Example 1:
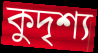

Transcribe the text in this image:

কুদৃশ্য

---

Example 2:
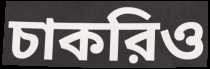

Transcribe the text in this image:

চাকরিও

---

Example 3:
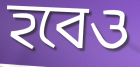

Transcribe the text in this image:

হবেও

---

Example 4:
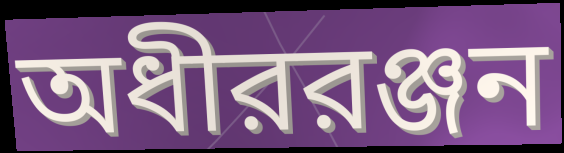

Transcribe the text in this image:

অধীররঞ্জন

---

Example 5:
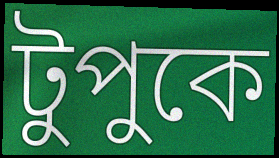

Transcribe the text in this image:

টুপুকে